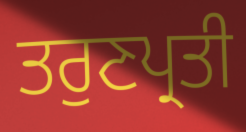
ਤਰੁਣਪ੍ਰਤੀ